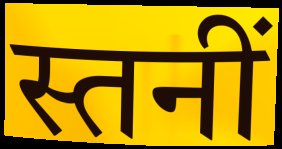
स्तनीं